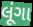
લૂંગા